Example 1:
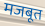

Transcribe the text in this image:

मजबूत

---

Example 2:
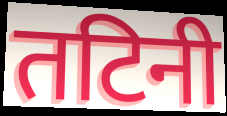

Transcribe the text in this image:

तटिनी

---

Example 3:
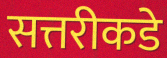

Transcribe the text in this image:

सत्तरीकडे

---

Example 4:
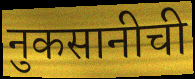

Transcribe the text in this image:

नुकसानीची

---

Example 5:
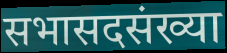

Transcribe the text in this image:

सभासदसंख्या